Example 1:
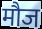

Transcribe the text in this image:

मौज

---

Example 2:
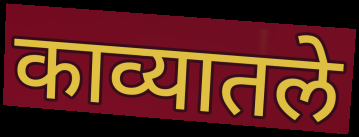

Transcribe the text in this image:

काव्यातले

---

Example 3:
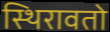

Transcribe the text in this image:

स्थिरावतो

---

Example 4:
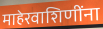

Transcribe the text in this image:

माहेरवाशिणींना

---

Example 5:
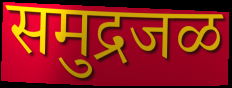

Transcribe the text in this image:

समुद्रजळ